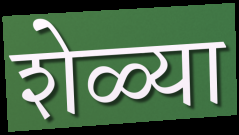
शेळ्या